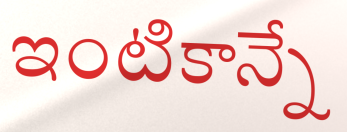
ఇంటికాన్నే